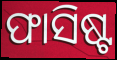
ଫାସିଷ୍ଟ